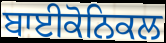
ਬਾਈਕੋਨਿਕਲ